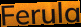
Ferula